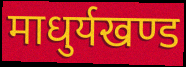
माधुर्यखण्ड